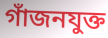
গাঁজনযুক্ত